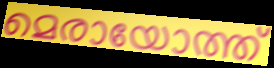
മെരായോത്ത്